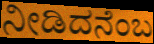
ನೀಡಿದನೆಂಬ